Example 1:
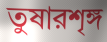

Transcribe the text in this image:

তুষারশৃঙ্গ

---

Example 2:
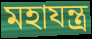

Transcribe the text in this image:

মহাযন্ত্র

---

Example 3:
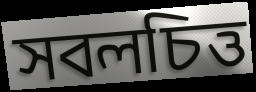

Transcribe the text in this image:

সবলচিত্ত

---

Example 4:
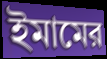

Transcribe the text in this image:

ইমামের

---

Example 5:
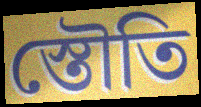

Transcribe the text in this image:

স্তৌতি